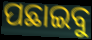
ପଛାଇବୁ